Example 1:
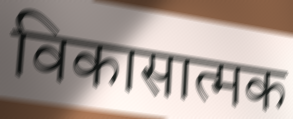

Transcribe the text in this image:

विकासात्मक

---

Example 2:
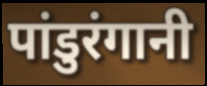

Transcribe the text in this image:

पांडुरंगानी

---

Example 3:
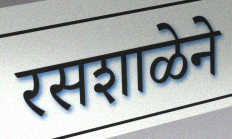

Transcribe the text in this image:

रसशाळेने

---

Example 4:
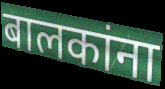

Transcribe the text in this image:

बालकांना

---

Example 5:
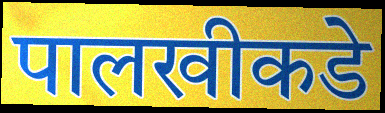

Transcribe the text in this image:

पालखीकडे